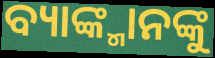
ବ୍ୟାଙ୍କ୍ମାନଙ୍କୁ